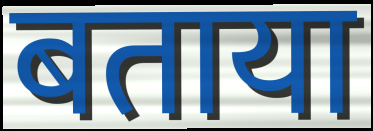
बताया